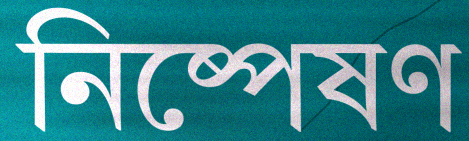
নিষ্পেষণ